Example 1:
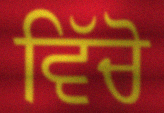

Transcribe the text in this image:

ਵਿੱਚੋ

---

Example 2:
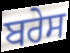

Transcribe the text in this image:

ਬਰੇਸ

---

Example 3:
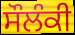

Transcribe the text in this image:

ਸੌਲੰਕੀ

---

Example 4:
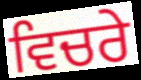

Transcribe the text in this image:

ਵਿਚਰੇ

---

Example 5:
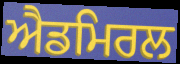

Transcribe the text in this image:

ਐਡਮਿਰਲ